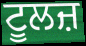
ਟੂਲਜ਼